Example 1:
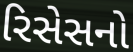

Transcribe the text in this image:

રિસેસનો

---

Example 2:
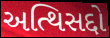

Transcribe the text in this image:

અત્થિસદ્દો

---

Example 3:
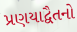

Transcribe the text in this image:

પ્રણયાદ્વૈતનો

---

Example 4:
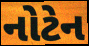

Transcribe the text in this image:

નોટેન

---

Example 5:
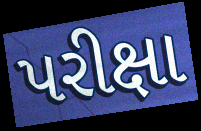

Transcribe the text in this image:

પરીક્ષા